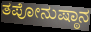
ತಪೋನುಷ್ಠಾನ